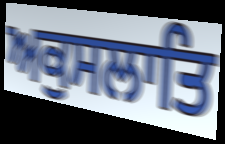
ਅਕੁਸਲਾਤਿ